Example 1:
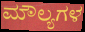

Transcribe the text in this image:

ಮೌಲ್ಯಗಳ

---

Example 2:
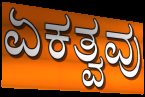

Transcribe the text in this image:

ಏಕತ್ವವು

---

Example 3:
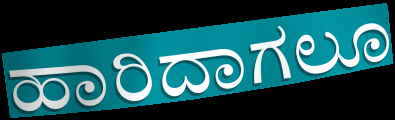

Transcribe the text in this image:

ಹಾರಿದಾಗಲೂ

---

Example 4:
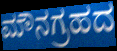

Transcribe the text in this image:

ಮೌನಗ್ರಹದ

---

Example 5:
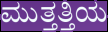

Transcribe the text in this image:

ಮುತ್ತತ್ತಿಯ